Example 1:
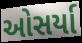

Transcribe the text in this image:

ઓસર્યા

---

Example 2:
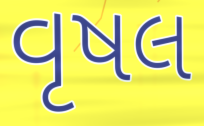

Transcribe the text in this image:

વૃષલ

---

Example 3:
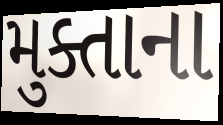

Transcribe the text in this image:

મુક્તાના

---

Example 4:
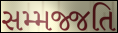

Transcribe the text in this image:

સમ્મજ્જતિ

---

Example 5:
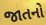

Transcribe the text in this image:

જાતનો